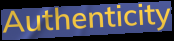
Authenticity